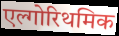
एल्गोरिथमिक